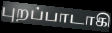
புறப்பாடாகி